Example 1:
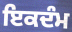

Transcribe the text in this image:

ਇਕਦੰਮ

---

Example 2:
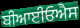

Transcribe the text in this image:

ਬੀਆਈਓਐਸ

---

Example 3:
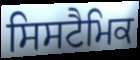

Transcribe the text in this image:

ਸਿਸਟੈਮਿਕ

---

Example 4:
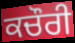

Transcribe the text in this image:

ਕਚੌਰੀ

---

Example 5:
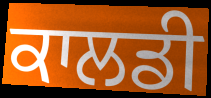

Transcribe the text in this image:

ਕਾਲਡੀ